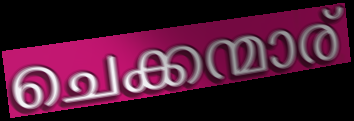
ചെക്കന്മാര്